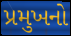
પ્રમુખનો